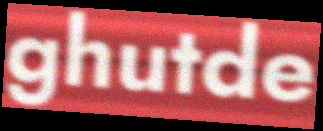
ghutde